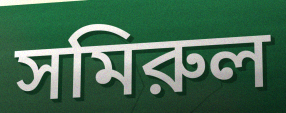
সমিরুল